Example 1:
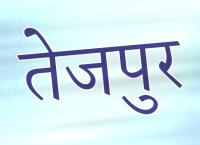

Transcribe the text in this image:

तेजपुर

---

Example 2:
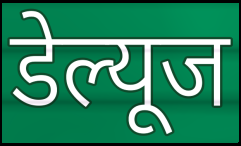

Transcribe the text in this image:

डेल्यूज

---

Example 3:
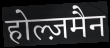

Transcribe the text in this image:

होल्ज़मैन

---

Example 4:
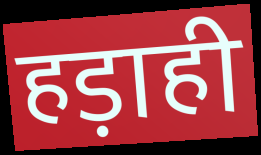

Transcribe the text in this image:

हड़ाही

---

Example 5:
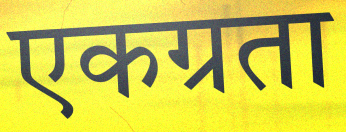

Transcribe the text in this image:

एकग्रता